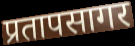
प्रतापसागर